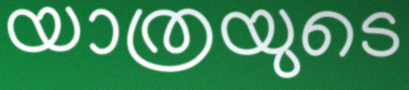
യാത്രയുടെ